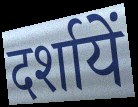
दर्शायें